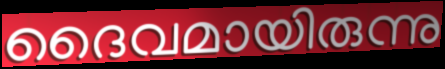
ദൈവമായിരുന്നു